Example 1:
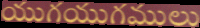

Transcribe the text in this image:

యుగయుగములు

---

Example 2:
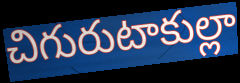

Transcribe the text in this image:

చిగురుటాకుల్లా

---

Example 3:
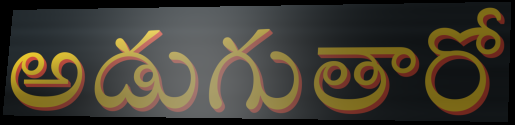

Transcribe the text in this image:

అడుగుతారో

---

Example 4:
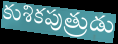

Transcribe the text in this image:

కుశికపుత్రుడు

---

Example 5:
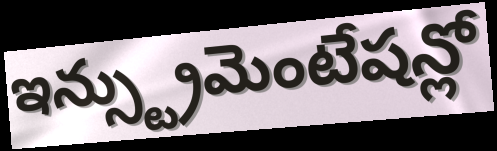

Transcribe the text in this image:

ఇన్స్ట్రుమెంటేషన్లో